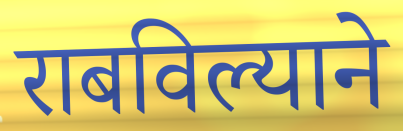
राबविल्याने